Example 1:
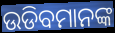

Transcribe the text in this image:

ଉଡିବମାନଙ୍କ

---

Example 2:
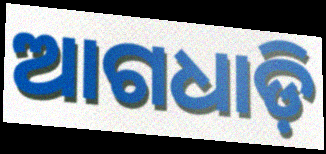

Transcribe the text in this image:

ଆଗଧାଡ଼ି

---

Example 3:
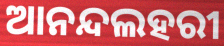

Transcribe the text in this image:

ଆନନ୍ଦଲହରୀ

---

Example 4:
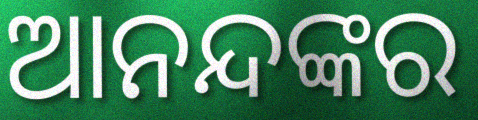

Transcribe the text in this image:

ଆନନ୍ଦଙ୍କର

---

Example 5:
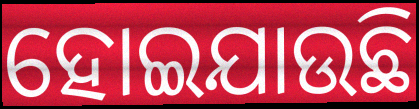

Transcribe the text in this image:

ହୋଇଯାଉଛି